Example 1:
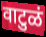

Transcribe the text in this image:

वाटुळं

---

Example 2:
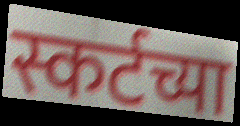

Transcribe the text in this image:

स्कर्टच्या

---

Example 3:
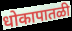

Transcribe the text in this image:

धोकापातळी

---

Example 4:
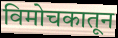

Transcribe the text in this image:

विमोचकातून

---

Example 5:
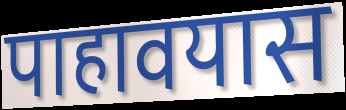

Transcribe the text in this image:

पाहावयास